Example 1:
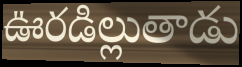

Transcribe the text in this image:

ఊరడిల్లుతాడు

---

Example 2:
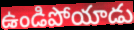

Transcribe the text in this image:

ఉండిపోయాడు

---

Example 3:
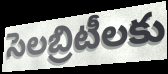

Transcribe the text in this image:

సెలబ్రిటీలకు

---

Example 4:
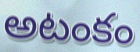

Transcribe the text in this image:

అటంకం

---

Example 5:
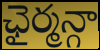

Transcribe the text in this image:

ఛైర్మన్గా